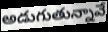
అడుగుతున్నావే